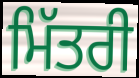
ਮਿੱਤਰੀ